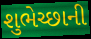
શુભેચ્છાની